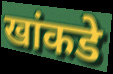
खांकडे